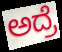
ಅದ್ರೆ